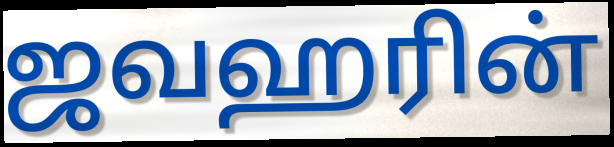
ஜவஹரின்